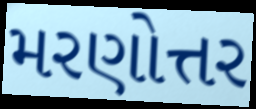
મરણોત્તર